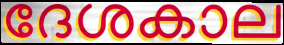
ദേശകാല